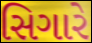
સિગારે